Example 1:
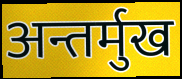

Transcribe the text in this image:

अन्तर्मुख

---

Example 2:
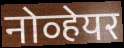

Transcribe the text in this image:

नोव्हेयर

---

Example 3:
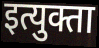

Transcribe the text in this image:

इत्युक्ता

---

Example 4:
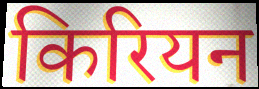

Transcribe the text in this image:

किरियन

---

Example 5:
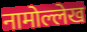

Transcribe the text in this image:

नामोल्लेख